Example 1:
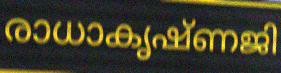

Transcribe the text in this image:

രാധാകൃഷ്ണജി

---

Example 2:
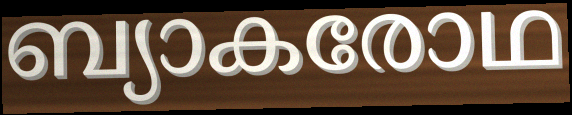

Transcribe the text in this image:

ബ്യാകരോഥ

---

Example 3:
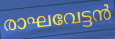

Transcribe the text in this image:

രാഘവേട്ടൻ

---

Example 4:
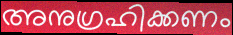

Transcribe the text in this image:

അനുഗ്രഹിക്കണം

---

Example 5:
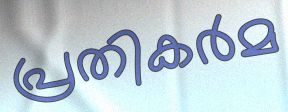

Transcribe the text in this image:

പ്രതികർമ